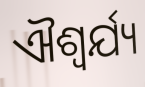
ଐଶ୍ଵର୍ଯ୍ୟ